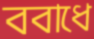
ববাধে